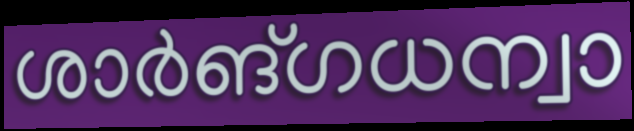
ശാർങ്ഗധന്വാ